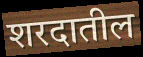
शरदातील